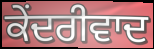
ਕੇਂਦਰੀਵਾਦ